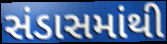
સંડાસમાંથી